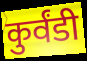
कुर्वंडी